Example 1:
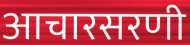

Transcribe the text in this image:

आचारसरणी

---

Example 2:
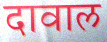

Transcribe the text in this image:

दावाल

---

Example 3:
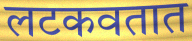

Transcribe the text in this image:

लटकवतात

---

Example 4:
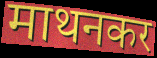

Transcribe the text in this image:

माथनकर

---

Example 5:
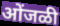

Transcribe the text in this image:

ओंजळी